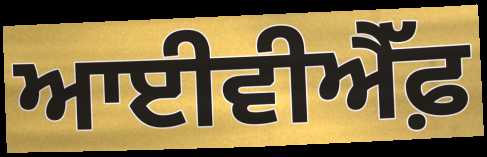
ਆਈਵੀਐੱਫ਼